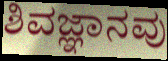
ಶಿವಜ್ಞಾನವು